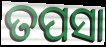
ତପସା